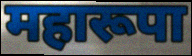
महारूपा